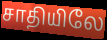
சாதியிலே